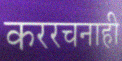
कररचनाही